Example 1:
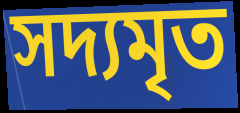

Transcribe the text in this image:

সদ্যমৃত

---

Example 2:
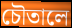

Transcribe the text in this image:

চৌতালে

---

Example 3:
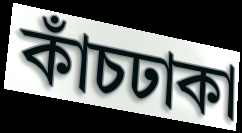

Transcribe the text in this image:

কাঁচঢাকা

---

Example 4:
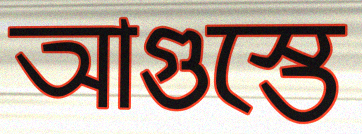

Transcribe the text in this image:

আগুস্তে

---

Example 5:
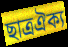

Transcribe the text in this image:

ছাত্রঐক্য